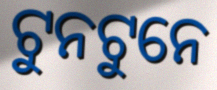
ଟୁନଟୁନେ